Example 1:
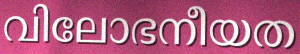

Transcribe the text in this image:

വിലോഭനീയത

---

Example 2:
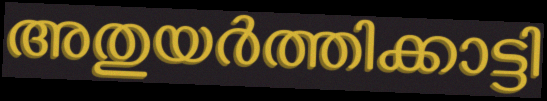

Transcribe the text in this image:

അതുയർത്തിക്കാട്ടി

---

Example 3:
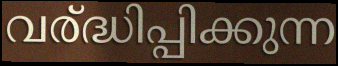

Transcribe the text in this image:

വര്ദ്ധിപ്പിക്കുന്ന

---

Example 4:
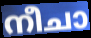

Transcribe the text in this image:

നീചാ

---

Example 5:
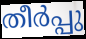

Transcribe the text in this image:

തീർപ്പു